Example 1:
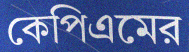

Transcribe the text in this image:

কেপিএমের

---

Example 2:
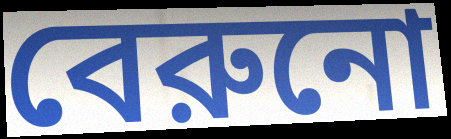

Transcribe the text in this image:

বেরুনো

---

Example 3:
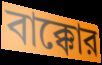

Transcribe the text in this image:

বাক্কোর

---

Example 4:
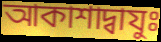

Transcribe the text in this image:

আকাশাদ্বাযুঃ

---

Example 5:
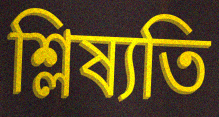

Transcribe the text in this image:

শ্লিষ্যতি